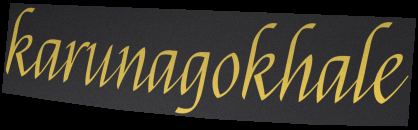
karunagokhale